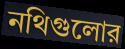
নথিগুলোর